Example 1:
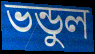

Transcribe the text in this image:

ভন্ডুল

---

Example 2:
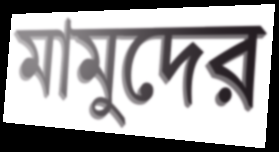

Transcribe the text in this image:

মামুদের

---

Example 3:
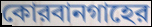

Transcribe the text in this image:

কোরবানগাহের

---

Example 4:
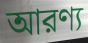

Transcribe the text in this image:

আরণ্য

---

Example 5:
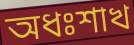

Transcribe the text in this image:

অধঃশাখ